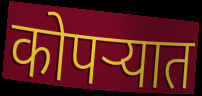
कोपऱ्यात